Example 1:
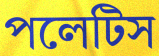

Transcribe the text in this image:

পলেটিস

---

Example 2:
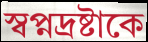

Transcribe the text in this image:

স্বপ্নদ্রষ্টাকে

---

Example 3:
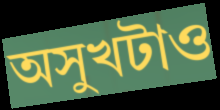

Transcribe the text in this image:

অসুখটাও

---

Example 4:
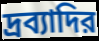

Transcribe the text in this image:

দ্রব্যাদির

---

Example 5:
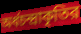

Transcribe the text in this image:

অর্ধচন্দ্রাকৃতির